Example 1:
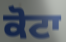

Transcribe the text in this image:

ਕੋਟਾ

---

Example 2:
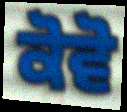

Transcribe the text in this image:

ਕੋਵੋ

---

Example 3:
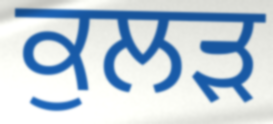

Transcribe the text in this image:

ਕੁਲੜ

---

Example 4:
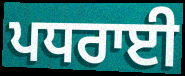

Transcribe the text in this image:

ਪਧਰਾਈ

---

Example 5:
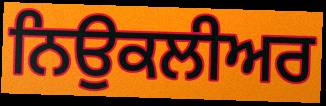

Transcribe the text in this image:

ਨਿਉਕਲੀਅਰ